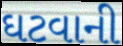
ઘટવાની